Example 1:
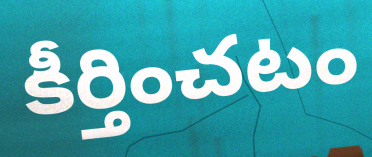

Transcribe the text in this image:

కీర్తించటం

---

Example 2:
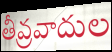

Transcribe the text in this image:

తీవ్రవాదుల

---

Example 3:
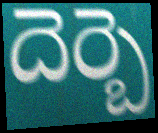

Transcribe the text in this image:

దెర్బె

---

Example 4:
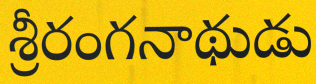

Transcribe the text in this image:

శ్రీరంగనాథుడు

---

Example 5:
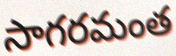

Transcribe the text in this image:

సాగరమంత